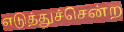
எடுத்துச்சென்ற